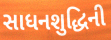
સાધનશુદ્ધિની